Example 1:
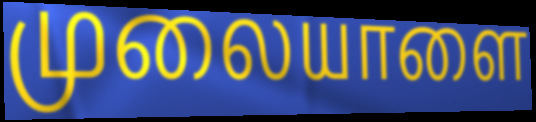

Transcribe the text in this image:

முலையாளை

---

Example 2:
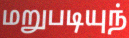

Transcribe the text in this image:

மறுபடியுந்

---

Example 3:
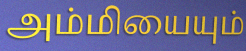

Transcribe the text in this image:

அம்மியையும்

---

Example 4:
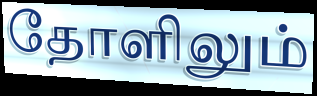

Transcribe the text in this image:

தோளிலும்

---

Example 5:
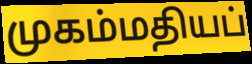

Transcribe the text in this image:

முகம்மதியப்